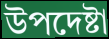
উপদেষ্টা